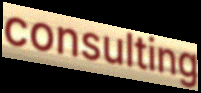
consulting